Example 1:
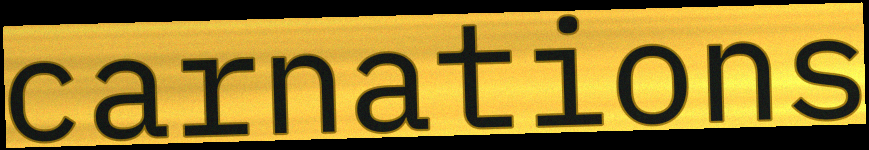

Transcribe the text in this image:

carnations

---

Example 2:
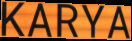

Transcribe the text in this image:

KARYA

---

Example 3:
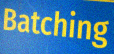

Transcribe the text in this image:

Batching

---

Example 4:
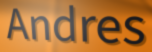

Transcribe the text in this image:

Andres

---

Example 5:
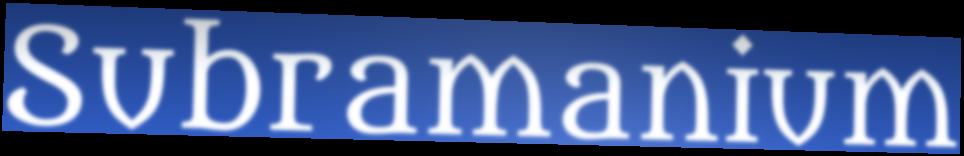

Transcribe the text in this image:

Subramanium